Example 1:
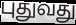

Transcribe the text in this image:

புதுவது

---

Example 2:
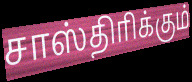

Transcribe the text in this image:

சாஸ்திரிக்கும்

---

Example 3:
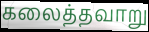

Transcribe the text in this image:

கலைத்தவாறு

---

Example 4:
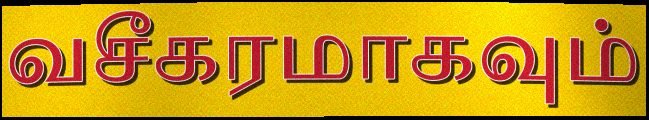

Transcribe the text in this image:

வசீகரமாகவும்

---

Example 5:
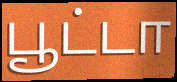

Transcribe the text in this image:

பூட்டா